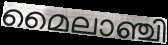
മൈലാഞ്ചി